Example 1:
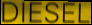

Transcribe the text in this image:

DIESEL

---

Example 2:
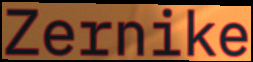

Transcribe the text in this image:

Zernike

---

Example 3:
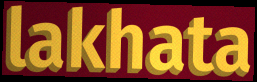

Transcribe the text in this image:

lakhata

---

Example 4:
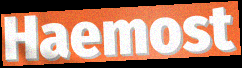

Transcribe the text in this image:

Haemost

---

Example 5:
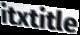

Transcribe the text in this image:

itxtitle